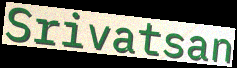
Srivatsan